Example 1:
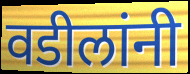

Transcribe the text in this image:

वडीलांनी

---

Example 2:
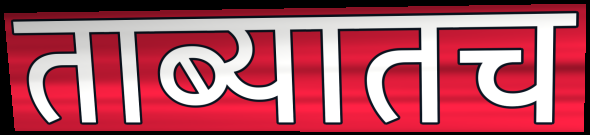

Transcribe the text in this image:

ताब्यातच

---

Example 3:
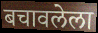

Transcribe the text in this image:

बचावलेला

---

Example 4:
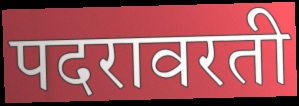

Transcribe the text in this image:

पदरावरती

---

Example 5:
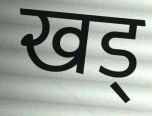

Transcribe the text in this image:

खड्